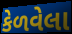
કેળવેલા